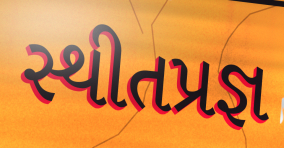
સ્થીતપ્રજ્ઞ